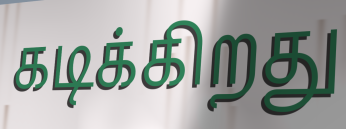
கடிக்கிறது